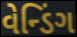
વેન્ડિંગ